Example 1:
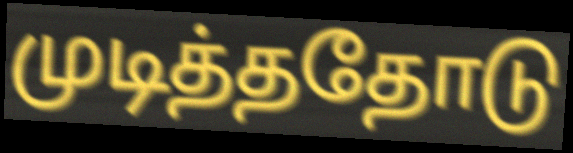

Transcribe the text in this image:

முடித்ததோடு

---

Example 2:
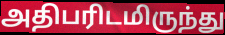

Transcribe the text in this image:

அதிபரிடமிருந்து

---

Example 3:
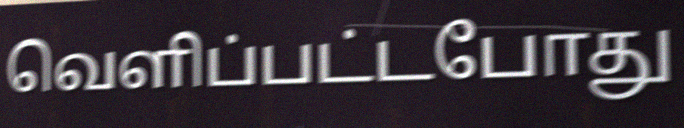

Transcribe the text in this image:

வெளிப்பட்டபோது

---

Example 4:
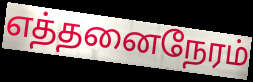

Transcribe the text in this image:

எத்தனைநேரம்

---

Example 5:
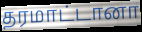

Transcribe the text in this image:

தரமாட்டானா